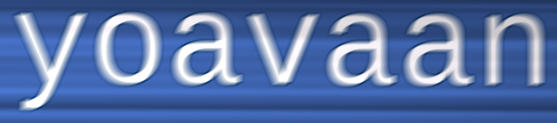
yoavaan